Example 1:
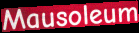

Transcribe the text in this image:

Mausoleum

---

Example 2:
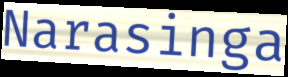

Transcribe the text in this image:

Narasinga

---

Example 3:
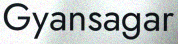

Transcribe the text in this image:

Gyansagar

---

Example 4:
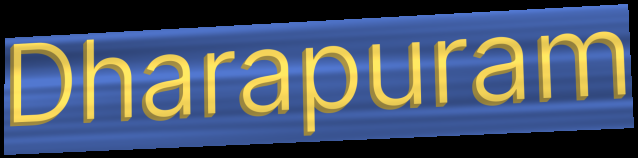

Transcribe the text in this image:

Dharapuram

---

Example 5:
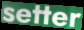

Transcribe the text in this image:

setter